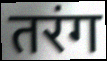
तरंग